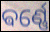
ଵର୍ଣ୍ଣେ